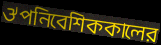
ঔপনিবেশিককালের